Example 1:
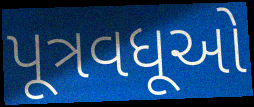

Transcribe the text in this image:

પૂત્રવધૂઓ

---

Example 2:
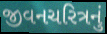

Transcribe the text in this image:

જીવનચરિત્રનું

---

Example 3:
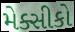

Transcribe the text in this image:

મેક્સીકો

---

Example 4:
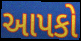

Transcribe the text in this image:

આપકો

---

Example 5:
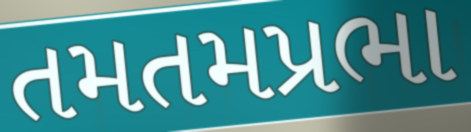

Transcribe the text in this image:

તમતમપ્રભા